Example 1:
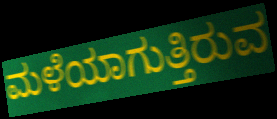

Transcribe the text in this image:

ಮಳೆಯಾಗುತ್ತಿರುವ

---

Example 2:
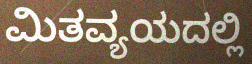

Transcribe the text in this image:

ಮಿತವ್ಯಯದಲ್ಲಿ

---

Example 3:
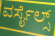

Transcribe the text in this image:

ವರ್ಸೈಲ್ಸ್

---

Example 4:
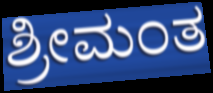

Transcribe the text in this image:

ಶ್ರೀಮಂತ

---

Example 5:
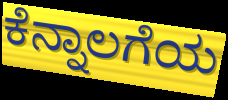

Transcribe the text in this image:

ಕೆನ್ನಾಲಗೆಯ